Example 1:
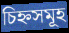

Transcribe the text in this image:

চিহ্নসমূহ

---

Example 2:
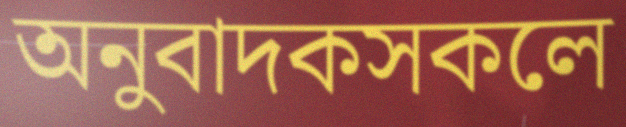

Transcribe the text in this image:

অনুবাদকসকলে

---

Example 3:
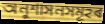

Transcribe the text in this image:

অনুশাসনসমূহৰ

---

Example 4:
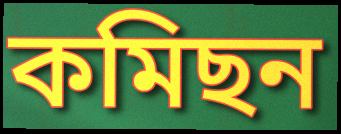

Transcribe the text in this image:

কমিছন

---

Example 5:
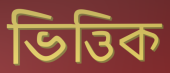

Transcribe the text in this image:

ভিত্তিক